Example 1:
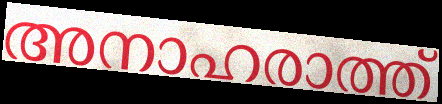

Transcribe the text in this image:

അനാഹരാത്ത്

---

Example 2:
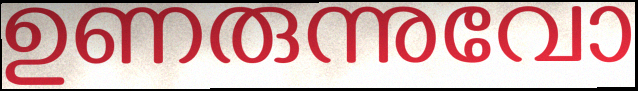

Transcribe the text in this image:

ഉണരുന്നുവോ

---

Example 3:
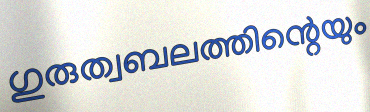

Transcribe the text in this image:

ഗുരുത്വബലത്തിന്റെയും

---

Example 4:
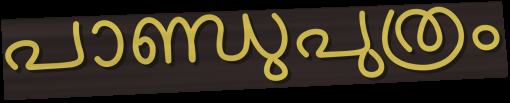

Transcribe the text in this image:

പാണ്ഡുപുത്രം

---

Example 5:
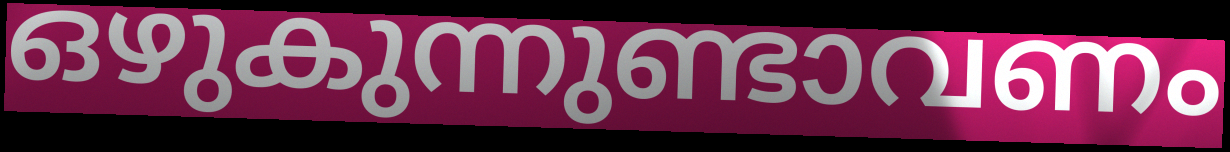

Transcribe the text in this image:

ഒഴുകുന്നുണ്ടാവണം